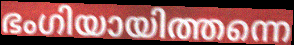
ഭംഗിയായിത്തന്നെ